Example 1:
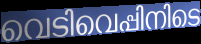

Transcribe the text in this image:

വെടിവെപ്പിനിടെ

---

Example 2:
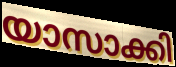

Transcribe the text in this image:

യാസാക്കി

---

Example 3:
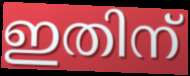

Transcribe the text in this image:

ഇതിന്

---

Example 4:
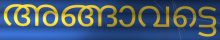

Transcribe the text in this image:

അങ്ങാവട്ടെ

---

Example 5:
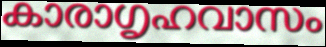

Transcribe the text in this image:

കാരാഗൃഹവാസം